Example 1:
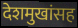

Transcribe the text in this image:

देशमुखांसह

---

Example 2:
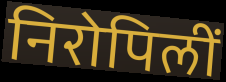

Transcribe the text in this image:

निरोपिलीं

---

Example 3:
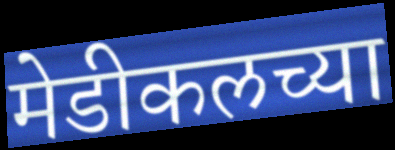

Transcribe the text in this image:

मेडीकलच्या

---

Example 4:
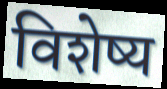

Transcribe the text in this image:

विशेष्य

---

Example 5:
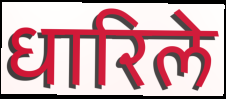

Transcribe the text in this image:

धारिले